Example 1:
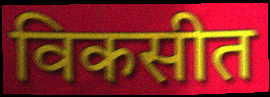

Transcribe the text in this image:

विकसीत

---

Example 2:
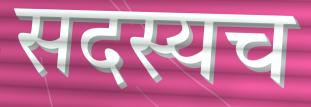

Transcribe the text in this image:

सदस्यच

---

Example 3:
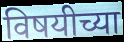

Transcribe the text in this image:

विषयीच्या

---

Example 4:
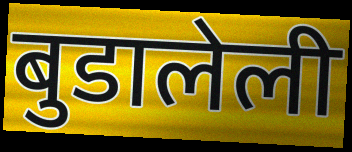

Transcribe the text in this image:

बुडालेली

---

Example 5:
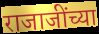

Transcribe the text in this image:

राजाजींच्या